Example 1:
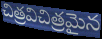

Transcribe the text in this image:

చిత్రవిచిత్రమైన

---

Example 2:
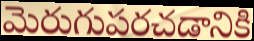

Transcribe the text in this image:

మెరుగుపరచడానికి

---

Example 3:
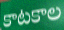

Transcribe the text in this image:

కాటకాల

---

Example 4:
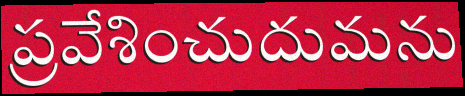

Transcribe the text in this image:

ప్రవేశించుదుమను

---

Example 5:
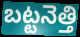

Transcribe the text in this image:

బట్టనెత్తి